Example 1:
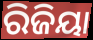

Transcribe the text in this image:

ରିଜିୟା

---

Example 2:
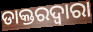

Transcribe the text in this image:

ଡାକ୍ତରଦ୍ୱାରା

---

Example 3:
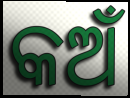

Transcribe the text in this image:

କଅଁ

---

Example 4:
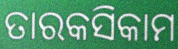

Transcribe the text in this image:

ତାରକସିକାମ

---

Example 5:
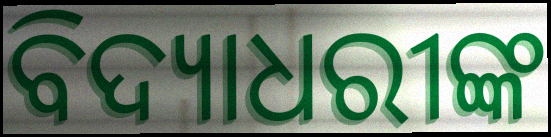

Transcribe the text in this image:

ବିଦ୍ୟାଧରୀଙ୍କ